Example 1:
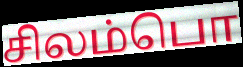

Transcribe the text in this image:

சிலம்பொ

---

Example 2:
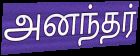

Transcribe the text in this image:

அனந்தர்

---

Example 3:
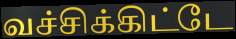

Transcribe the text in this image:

வச்சிக்கிட்டே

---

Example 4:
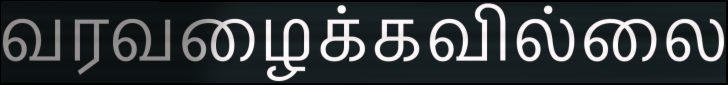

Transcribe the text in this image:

வரவழைக்கவில்லை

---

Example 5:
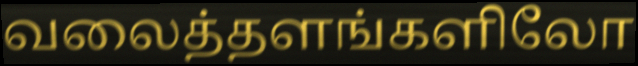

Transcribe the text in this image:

வலைத்தளங்களிலோ